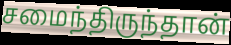
சமைந்திருந்தான்